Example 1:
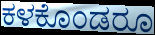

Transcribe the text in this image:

ಕಳಕೊಂಡರೂ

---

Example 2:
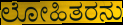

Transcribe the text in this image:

ಲೋಹಿತರನು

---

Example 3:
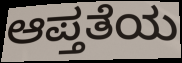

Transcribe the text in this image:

ಆಪ್ತತೆಯ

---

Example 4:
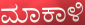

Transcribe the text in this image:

ಮಾಕಾಳಿ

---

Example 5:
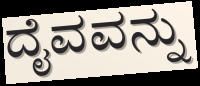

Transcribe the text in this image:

ದೈವವನ್ನು